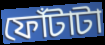
ফোঁটাটা